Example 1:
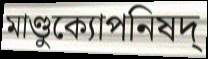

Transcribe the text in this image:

মাণ্ডুক্যোপনিষদ্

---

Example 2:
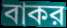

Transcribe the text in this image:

বাকর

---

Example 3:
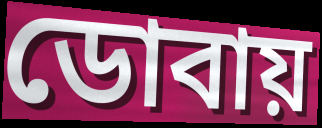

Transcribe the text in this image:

ডোবায়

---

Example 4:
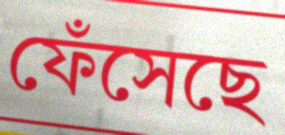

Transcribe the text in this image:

ফেঁসেছে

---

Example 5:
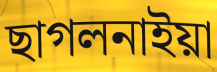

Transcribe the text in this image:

ছাগলনাইয়া